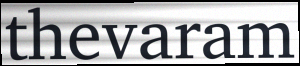
thevaram